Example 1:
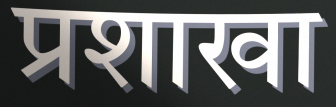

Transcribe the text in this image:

प्रशाखा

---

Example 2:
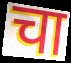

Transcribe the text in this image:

चा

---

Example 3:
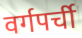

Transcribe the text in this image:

वर्गपर्ची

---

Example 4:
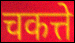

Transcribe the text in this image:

चकत्ते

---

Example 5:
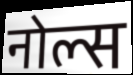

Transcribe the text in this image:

नोल्स